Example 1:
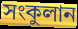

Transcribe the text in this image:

সংকুলান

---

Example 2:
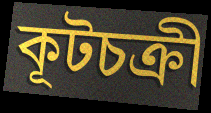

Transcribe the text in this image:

কূটচক্রী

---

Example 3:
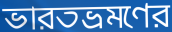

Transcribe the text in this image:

ভারতভ্রমণের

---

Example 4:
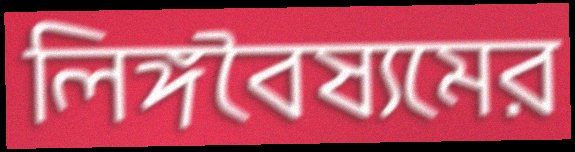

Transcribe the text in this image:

লিঙ্গবৈষ্যমের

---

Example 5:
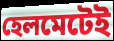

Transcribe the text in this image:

হেলমেটেই